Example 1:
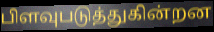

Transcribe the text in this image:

பிளவுபடுத்துகின்றன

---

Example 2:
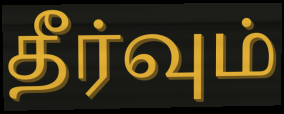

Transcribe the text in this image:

தீர்வும்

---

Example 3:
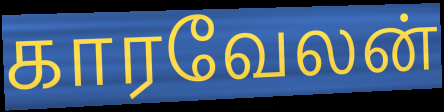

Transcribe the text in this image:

காரவேலன்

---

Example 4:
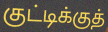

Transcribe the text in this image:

குட்டிக்குத்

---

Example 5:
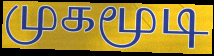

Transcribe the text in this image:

முகமூடி